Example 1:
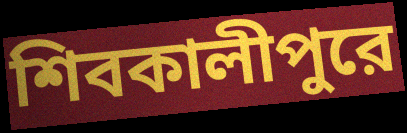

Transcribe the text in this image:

শিবকালীপুরে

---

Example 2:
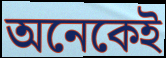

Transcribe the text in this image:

অনেকেই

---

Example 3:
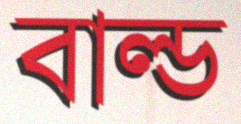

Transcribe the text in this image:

বাল্ড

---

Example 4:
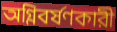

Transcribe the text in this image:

অগ্নিবর্ষণকারী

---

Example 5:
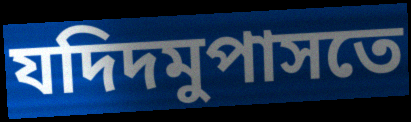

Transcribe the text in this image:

যদিদমুপাসতে